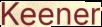
Keener